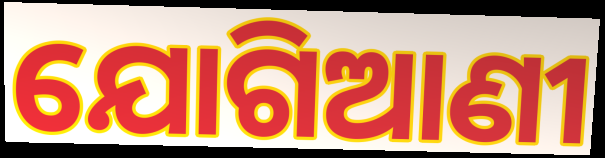
ଯୋଗିଆଣୀ